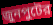
জুনপুটের